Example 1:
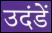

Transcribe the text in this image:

उदंडें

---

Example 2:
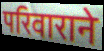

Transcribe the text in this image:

परिवाराने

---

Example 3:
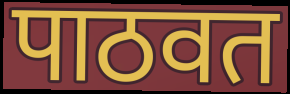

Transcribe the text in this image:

पाठवत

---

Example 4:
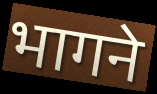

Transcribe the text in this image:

भागने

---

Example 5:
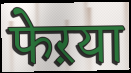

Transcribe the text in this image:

फेऱया